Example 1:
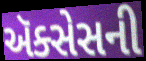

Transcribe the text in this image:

ઍક્સેસની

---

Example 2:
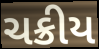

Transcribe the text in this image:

ચક્રીય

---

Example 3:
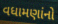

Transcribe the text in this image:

વધામણાંનો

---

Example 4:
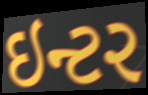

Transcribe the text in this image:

ઇન્ટર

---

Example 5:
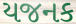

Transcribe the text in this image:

યજનક